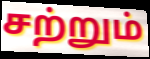
சற்றும்